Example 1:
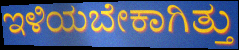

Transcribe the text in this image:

ಇಳಿಯಬೇಕಾಗಿತ್ತು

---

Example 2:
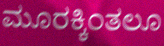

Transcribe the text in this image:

ಮೂರಕ್ಕಿಂತಲೂ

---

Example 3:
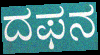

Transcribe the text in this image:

ದಫನ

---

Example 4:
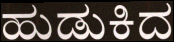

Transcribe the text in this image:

ಹುಡುಕಿದ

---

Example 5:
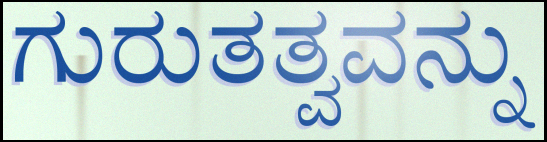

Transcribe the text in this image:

ಗುರುತತ್ವವನ್ನು